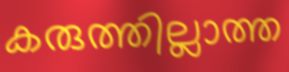
കരുത്തില്ലാത്ത